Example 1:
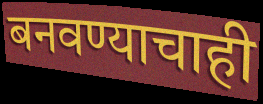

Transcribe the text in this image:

बनवण्याचाही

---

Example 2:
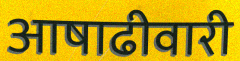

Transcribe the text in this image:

आषाढीवारी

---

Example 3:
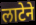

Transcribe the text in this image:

लाटेने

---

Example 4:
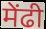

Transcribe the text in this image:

मेंढी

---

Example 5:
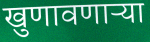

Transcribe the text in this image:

खुणावणाऱ्या